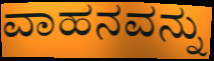
ವಾಹನವನ್ನು